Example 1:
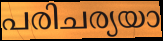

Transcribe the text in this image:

പരിചര്യയാ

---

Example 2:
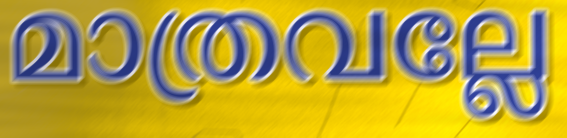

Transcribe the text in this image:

മാത്രവല്ലേ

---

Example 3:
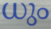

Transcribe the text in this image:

ധും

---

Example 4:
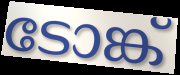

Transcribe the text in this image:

ടോങ്ക്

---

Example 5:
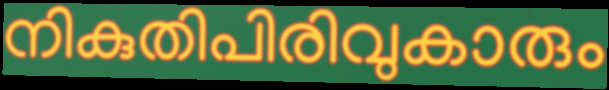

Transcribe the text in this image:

നികുതിപിരിവുകാരും